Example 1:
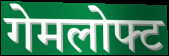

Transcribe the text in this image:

गेमलोफ्ट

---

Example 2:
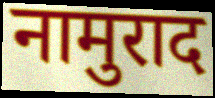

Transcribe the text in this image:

नामुराद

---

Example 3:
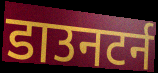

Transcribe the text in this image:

डाउनटर्न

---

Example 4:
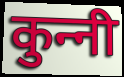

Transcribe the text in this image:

कुन्नी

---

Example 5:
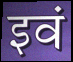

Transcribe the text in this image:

इवं